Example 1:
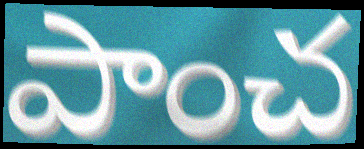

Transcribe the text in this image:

పాంచ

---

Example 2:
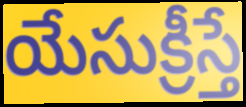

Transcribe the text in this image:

యేసుక్రీస్తే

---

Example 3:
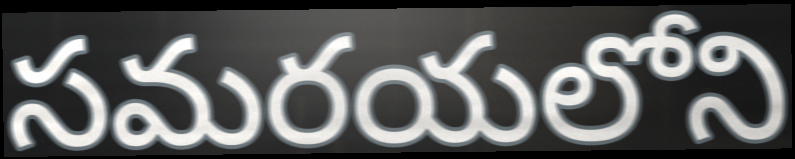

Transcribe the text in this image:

సమరయలోని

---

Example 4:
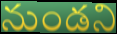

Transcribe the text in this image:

నుండని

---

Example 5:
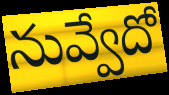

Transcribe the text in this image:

నువ్వేదో